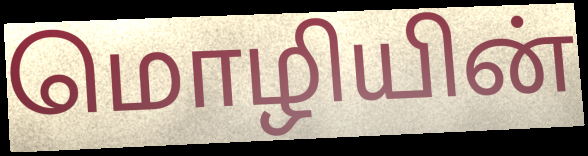
மொழியின்